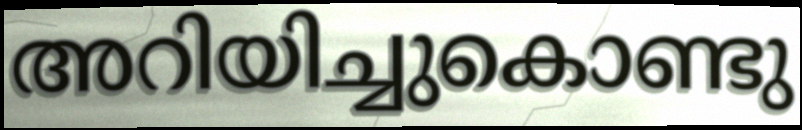
അറിയിച്ചുകൊണ്ടു